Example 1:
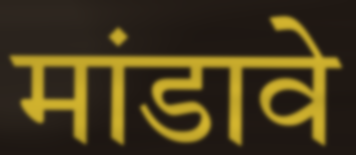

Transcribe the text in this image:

मांडावे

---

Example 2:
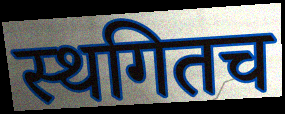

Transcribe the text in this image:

स्थगितच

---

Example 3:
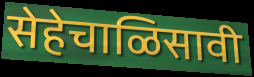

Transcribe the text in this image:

सेहेचाळिसावी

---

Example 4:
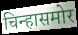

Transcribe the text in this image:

चिन्हासमोर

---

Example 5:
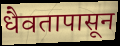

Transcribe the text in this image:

धैवतापासून